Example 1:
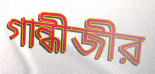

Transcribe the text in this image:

গান্ধীজীর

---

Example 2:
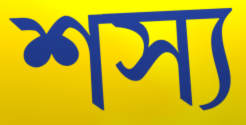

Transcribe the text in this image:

শস্য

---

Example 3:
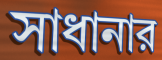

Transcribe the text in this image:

সাধানার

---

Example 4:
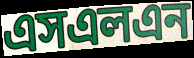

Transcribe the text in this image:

এসএলএন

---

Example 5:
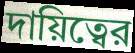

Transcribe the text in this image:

দায়িত্বের